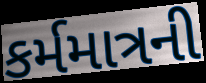
કર્મમાત્રની